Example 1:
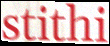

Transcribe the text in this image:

stithi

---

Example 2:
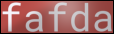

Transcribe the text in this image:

fafda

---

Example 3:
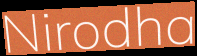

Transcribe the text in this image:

Nirodha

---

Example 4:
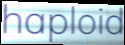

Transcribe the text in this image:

haploid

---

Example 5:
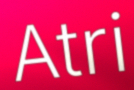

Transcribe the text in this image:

Atri